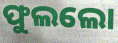
ଫୁଲଲୋ